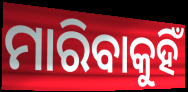
ମାରିବାକୁହିଁ